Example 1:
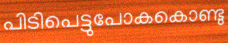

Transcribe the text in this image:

പിടിപെട്ടുപോകകൊണ്ടു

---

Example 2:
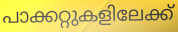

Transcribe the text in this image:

പാക്കറ്റുകളിലേക്ക്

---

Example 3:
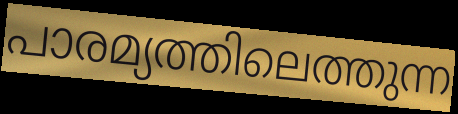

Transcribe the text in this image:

പാരമ്യത്തിലെത്തുന്ന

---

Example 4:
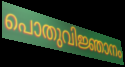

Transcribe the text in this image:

പൊതുവിജ്ഞാനം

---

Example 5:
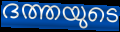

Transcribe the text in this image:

ദത്തയുടെ